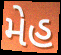
મેહ